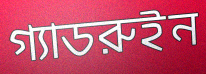
গ্যাডরুইন